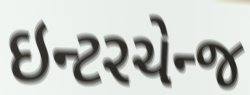
ઇન્ટરચેન્જ